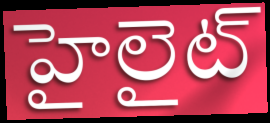
హైలైట్